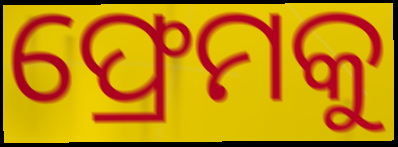
ଫ୍ରେମକୁ